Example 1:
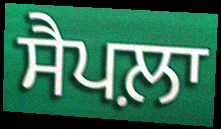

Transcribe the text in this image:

ਸੈਪਲ਼ਾ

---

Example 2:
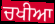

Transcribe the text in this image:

ਚਖੀਆ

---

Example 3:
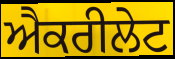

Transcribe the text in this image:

ਐਕਰੀਲੇਟ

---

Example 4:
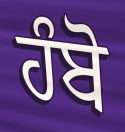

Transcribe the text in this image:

ਹੰਬੋ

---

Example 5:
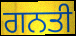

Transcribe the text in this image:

ਗਨਤੀ